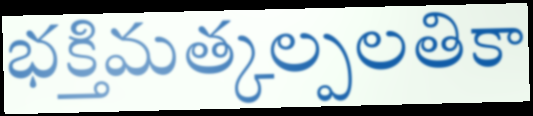
భక్తిమత్కల్పలతికా